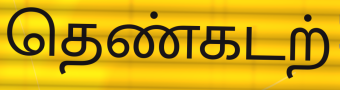
தெண்கடற்